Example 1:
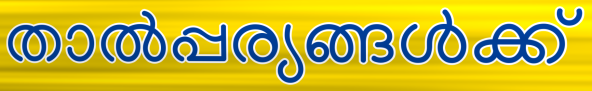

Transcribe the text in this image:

താൽപ്പര്യങ്ങൾക്ക്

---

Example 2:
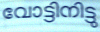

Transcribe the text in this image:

വോട്ടിനിട്ടു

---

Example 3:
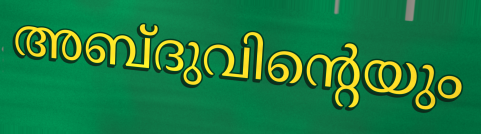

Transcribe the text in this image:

അബ്ദുവിന്റെയും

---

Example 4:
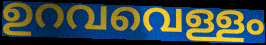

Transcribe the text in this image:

ഉറവവെള്ളം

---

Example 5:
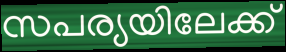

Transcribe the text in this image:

സപര്യയിലേക്ക്